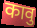
कावु